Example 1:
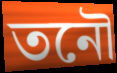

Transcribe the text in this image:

তনৌ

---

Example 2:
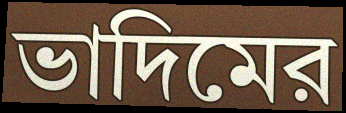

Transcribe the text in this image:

ভাদিমের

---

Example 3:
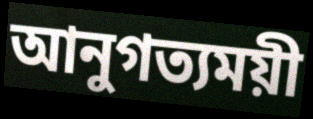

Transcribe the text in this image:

আনুগত্যময়ী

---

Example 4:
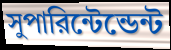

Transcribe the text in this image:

সুপারিন্টেন্ডেন্ট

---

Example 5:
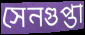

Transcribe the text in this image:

সেনগুপ্তা